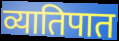
व्यातिपात